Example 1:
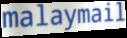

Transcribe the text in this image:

malaymail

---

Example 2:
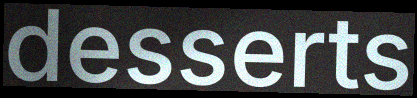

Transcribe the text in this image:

desserts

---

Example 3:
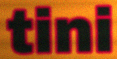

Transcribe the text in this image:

tini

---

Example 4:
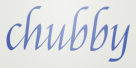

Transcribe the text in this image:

chubby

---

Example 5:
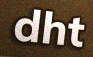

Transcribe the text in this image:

dht